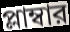
প্লাম্বার